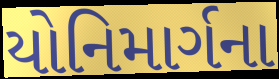
યોનિમાર્ગના